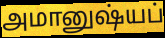
அமானுஷ்யப்